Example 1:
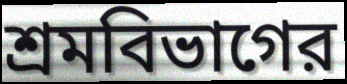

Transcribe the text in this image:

শ্রমবিভাগের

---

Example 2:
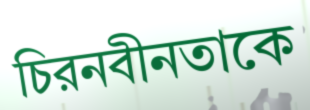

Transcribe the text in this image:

চিরনবীনতাকে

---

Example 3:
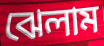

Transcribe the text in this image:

ঝেলাম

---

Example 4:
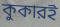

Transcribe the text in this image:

কুকারই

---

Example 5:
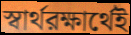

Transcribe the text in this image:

স্বার্থরক্ষার্থেই